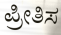
ಪ್ರೀತಿಸ